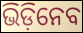
ଭିଡ଼ିନେବ